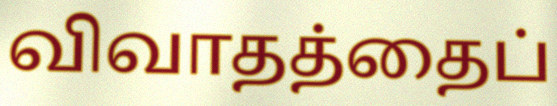
விவாதத்தைப்